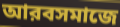
আরবসমাজে